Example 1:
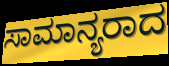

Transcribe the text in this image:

ಸಾಮಾನ್ಯರಾದ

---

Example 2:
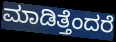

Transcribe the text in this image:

ಮಾಡಿತ್ತೆಂದರೆ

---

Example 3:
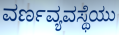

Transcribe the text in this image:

ವರ್ಣವ್ಯವಸ್ಥೆಯು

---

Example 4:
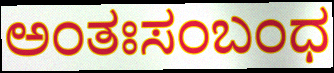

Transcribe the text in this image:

ಅಂತಃಸಂಬಂಧ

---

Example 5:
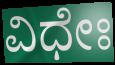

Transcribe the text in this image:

ವಿಧೇಃ